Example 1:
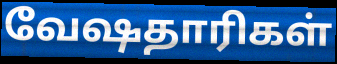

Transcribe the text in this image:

வேஷதாரிகள்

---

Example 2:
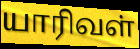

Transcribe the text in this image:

யாரிவள்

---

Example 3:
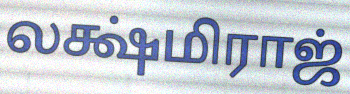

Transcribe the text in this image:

லக்ஷ்மிராஜ்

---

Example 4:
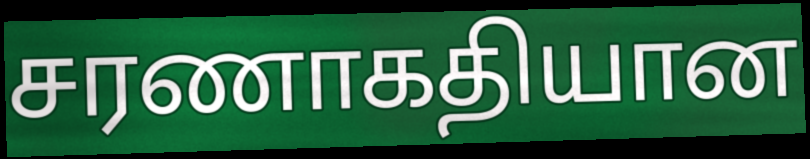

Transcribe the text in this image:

சரணாகதியான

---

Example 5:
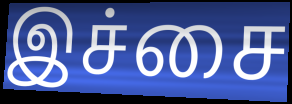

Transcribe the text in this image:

இச்சை